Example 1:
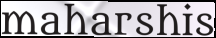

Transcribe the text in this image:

maharshis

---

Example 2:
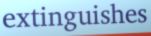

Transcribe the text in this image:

extinguishes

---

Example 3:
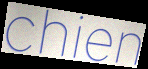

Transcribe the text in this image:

chien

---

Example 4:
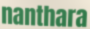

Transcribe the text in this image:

nanthara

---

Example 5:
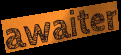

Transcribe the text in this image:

awaiter